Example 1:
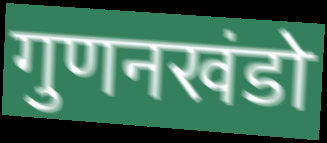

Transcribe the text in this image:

गुणनखंडो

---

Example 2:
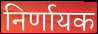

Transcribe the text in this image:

निर्णायक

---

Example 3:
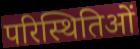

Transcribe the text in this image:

परिस्थितिओं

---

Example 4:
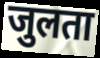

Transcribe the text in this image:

जुलता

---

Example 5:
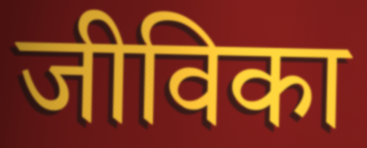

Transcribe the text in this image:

जीविका